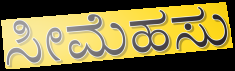
ಸೀಮೆಹಸು